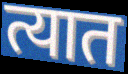
त्यात